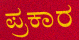
ಪ್ರಕಾರ